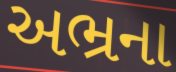
અભ્રના